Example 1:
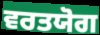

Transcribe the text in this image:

ਵਰਤਯੋਗ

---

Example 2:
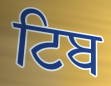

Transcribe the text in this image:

ਟਿਬ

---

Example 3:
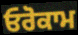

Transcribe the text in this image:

ਓਰੋਕਾਮ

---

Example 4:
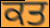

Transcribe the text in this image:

ਕਤ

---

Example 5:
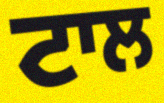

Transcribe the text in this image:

ਟਾਲ